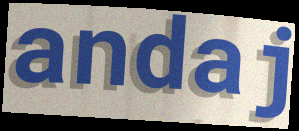
andaj